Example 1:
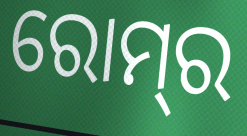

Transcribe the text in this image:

ରୋମ୍‌ର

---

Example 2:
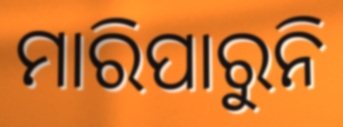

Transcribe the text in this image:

ମାରିପାରୁନି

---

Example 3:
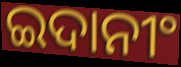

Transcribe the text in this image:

ଇଦାନୀଂ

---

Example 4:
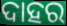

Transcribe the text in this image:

ଦାହର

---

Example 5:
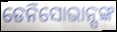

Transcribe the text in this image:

ଡେନିସୋଭାନ୍ସଙ୍କ